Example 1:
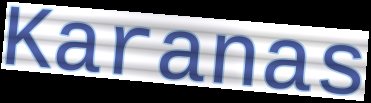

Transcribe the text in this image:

Karanas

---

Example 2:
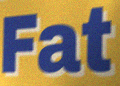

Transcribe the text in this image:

Fat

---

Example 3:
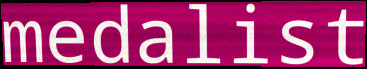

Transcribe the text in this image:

medalist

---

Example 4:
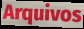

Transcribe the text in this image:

Arquivos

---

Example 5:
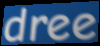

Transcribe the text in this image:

dree